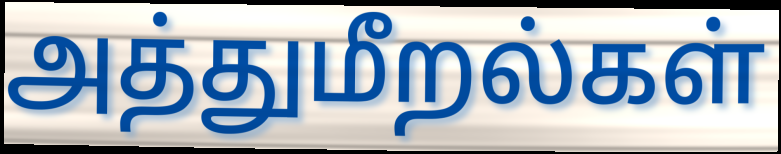
அத்துமீறல்கள்